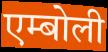
एम्बोली